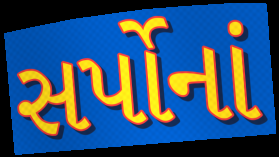
સર્પોનાં